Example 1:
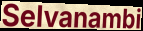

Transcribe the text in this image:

Selvanambi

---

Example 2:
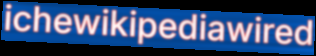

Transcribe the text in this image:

ichewikipediawired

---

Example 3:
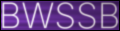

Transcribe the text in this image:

BWSSB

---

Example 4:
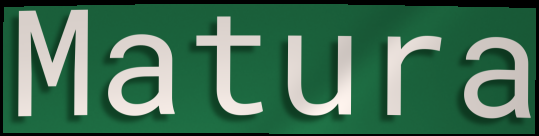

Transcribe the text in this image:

Matura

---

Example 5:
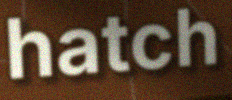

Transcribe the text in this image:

hatch